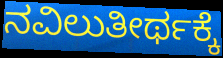
ನವಿಲುತೀರ್ಥಕ್ಕೆ